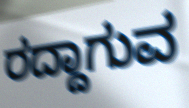
ರದ್ದಾಗುವ